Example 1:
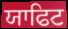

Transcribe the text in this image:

ਯਾਫਿਟ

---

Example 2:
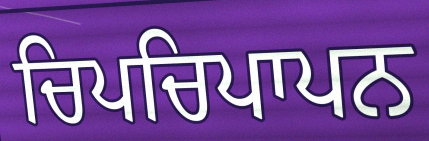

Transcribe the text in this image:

ਚਿਪਚਿਪਾਪਨ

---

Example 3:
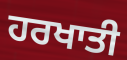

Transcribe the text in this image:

ਹਰਖਾਤੀ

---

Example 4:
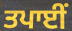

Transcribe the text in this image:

ਤਪਾਈਂ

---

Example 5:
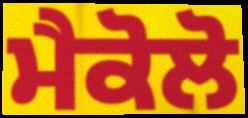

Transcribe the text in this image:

ਮੈਕੋਲੋ